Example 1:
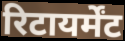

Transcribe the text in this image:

रिटायर्मेंट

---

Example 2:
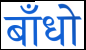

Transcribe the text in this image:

बाँधो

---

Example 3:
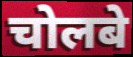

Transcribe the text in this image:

चोलबे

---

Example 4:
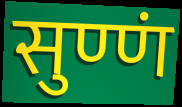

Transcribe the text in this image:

सुण्णं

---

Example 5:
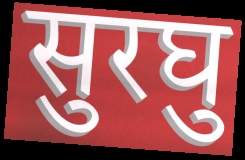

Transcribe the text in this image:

सुरघु